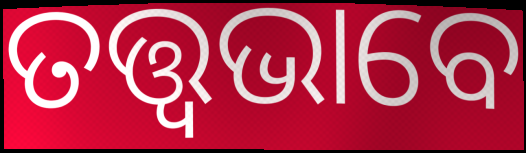
ତତ୍ତ୍ଵଭାବେ